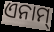
ଏନାମ୍